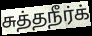
சுத்தநீர்க்